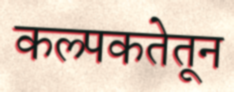
कल्पकतेतून